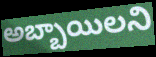
అబ్బాయిలని